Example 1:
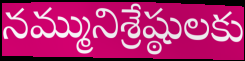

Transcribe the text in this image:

నమ్మునిశ్రేష్ఠులకు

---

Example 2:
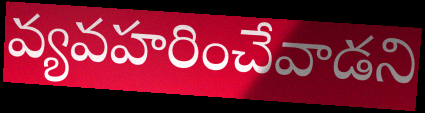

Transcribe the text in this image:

వ్యవహరించేవాడని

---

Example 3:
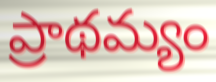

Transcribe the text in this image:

ప్రాథమ్యం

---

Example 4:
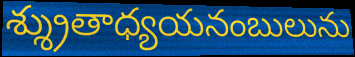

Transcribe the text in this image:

శ్శ్రుతాధ్యయనంబులును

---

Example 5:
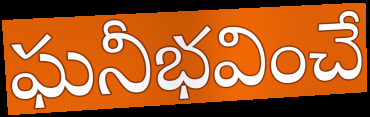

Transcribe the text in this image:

ఘనీభవించే